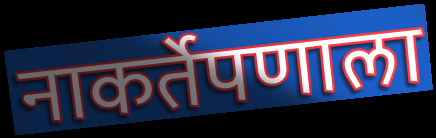
नाकर्तेपणाला